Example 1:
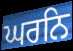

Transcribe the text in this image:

ਘਰਨਿ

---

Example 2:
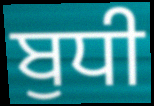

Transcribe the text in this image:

ਬੁਧੀ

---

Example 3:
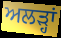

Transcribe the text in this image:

ਅਲੜ੍ਹਾਂ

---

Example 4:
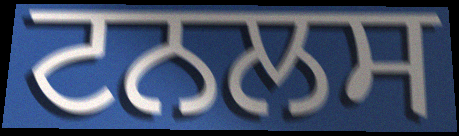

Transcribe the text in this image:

ਟਨਲਸ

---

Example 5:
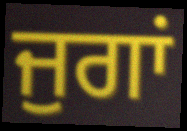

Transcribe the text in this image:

ਜੁਗਾਂ